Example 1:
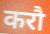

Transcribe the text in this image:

करौ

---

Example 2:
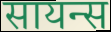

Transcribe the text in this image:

सायन्स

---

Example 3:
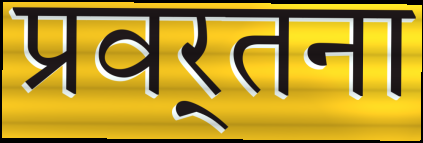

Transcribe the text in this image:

प्रवर्तना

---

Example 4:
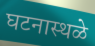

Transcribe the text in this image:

घटनास्थळे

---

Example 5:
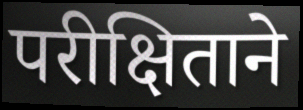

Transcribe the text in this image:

परीक्षिताने